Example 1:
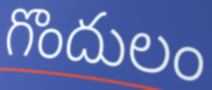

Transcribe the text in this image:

గొందులం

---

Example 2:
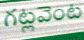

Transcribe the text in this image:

గట్లవెంట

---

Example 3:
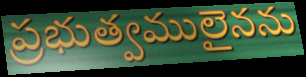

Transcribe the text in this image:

ప్రభుత్వములైనను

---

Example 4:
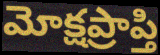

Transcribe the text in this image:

మోక్షప్రాప్తి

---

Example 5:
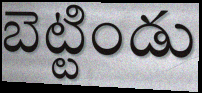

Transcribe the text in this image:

బెట్టిండు